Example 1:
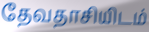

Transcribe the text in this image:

தேவதாசியிடம்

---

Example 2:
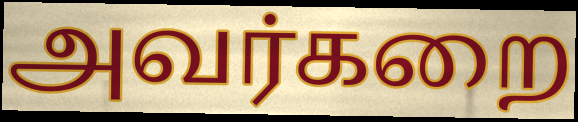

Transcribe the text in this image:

அவர்கறை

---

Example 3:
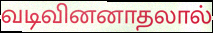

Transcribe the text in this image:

வடிவினனாதலால்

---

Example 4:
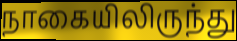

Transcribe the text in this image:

நாகையிலிருந்து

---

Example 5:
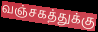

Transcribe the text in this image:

வஞ்சகத்துக்கு